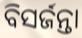
ବିସର୍ଜନ୍ତା